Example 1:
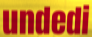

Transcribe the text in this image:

undedi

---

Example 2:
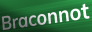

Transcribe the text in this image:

Braconnot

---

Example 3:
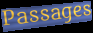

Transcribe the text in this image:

Passages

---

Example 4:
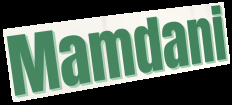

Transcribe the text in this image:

Mamdani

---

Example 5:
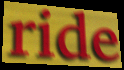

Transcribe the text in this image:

ride